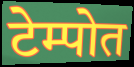
टेम्पोत